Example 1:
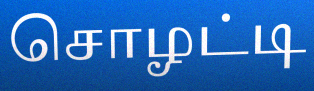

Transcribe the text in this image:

சொழட்டி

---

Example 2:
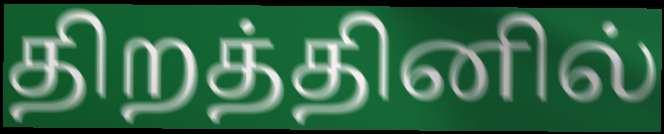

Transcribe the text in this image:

திறத்தினில்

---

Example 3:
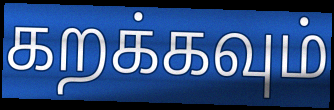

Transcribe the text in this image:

கறக்கவும்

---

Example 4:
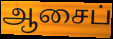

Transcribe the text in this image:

ஆசைப்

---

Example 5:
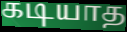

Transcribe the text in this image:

கடியாத